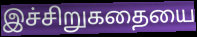
இச்சிறுகதையை